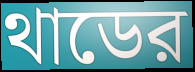
থাডের